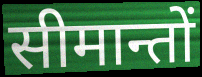
सीमान्तों